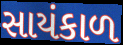
સાયંકાળ